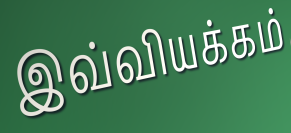
இவ்வியக்கம்